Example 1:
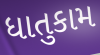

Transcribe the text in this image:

ધાતુકામ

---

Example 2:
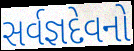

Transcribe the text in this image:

સર્વજ્ઞદેવનો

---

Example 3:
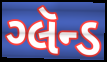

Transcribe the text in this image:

ગ્લૅન્ડ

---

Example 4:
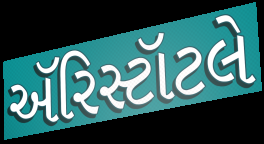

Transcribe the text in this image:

ઍરિસ્ટૉટલે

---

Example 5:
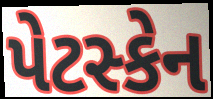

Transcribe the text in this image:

પેટસ્કેન